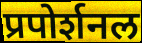
प्रपोर्शनल